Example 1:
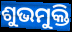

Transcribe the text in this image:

ଶୁଭମୁକ୍ତି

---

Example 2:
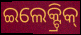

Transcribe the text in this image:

ଇଲେକ୍ଟ୍ରିକ୍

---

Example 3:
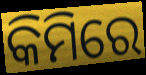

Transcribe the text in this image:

କିମିରେ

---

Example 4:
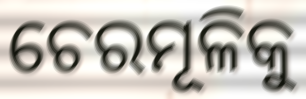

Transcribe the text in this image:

ଚେରମୂଳିକୁ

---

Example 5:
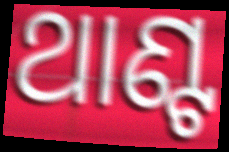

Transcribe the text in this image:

ଥାଣ୍ଟ